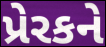
પ્રેરકને